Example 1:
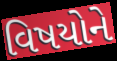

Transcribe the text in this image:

વિષયોને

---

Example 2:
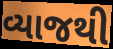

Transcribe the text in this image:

વ્યાજથી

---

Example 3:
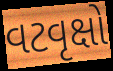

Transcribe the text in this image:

વટવૃક્ષો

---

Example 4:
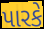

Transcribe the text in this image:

પારકે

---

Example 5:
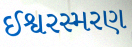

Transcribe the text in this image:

ઈશ્વરસ્મરણ